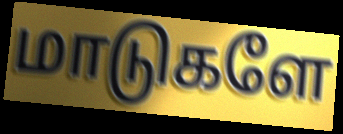
மாடுகளே